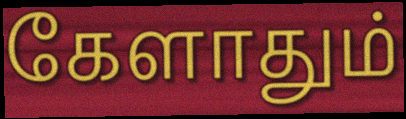
கேளாதும்